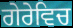
ਗੇਰੇਵਿਚ